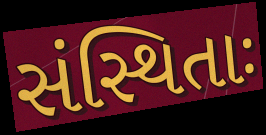
સંસ્થિતાઃ